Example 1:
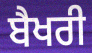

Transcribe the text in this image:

ਬੈਖਰੀ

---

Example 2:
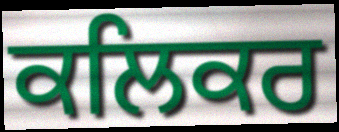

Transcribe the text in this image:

ਕਲਿਕਰ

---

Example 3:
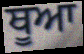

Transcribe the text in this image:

ਥੂਆ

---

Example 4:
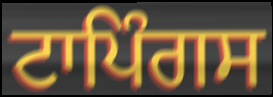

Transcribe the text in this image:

ਟਾਪਿੰਗਸ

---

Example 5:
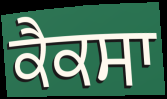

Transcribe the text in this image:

ਕੈਕਸਾ